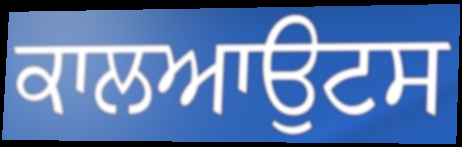
ਕਾਲਆਉਟਸ